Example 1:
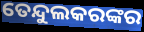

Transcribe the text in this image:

ତେନ୍ଦୁଲକରଙ୍କର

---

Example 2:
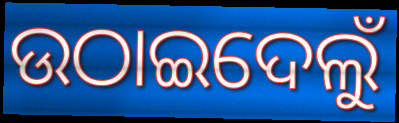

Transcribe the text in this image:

ଉଠାଇଦେଲୁଁ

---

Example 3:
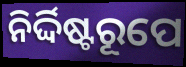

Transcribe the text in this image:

ନିର୍ଦ୍ଦିଷ୍ଟରୂପେ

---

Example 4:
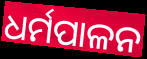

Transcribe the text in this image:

ଧର୍ମପାଳନ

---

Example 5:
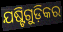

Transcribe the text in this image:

ଯଷ୍ଟିଗୁଡ଼ିକର